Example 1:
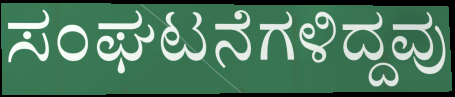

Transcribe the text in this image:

ಸಂಘಟನೆಗಳಿದ್ದವು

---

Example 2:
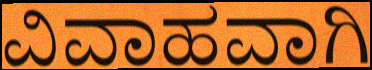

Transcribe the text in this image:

ವಿವಾಹವಾಗಿ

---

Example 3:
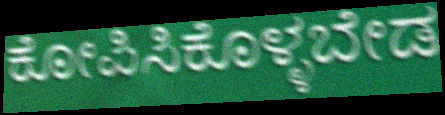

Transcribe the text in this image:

ಕೋಪಿಸಿಕೊಳ್ಳಬೇಡ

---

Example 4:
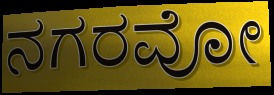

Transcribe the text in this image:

ನಗರವೋ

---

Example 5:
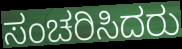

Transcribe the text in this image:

ಸಂಚರಿಸಿದರು